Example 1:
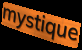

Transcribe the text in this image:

mystique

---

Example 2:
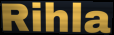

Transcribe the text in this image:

Rihla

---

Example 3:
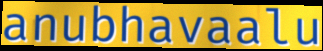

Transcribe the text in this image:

anubhavaalu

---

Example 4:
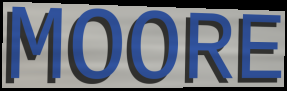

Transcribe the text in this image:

MOORE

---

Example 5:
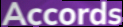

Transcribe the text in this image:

Accords